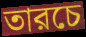
তারচে